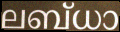
ലബ്ധാ